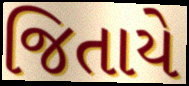
જિતાયે